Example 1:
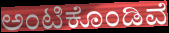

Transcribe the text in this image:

ಅಂಟಿಕೊಂಡಿವೆ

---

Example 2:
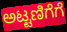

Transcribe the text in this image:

ಅಟ್ಟಣಿಗೆಗೆ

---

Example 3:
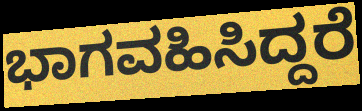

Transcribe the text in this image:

ಭಾಗವಹಿಸಿದ್ದರೆ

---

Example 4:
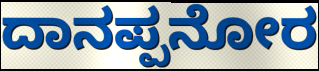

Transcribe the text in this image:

ದಾನಪ್ಪನೋರ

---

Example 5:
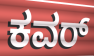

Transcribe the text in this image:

ಕವರ್